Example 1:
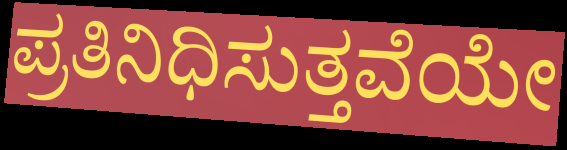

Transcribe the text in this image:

ಪ್ರತಿನಿಧಿಸುತ್ತವೆಯೇ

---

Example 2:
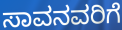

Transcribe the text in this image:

ಸಾವನವರಿಗೆ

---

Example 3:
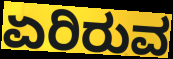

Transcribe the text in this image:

ಏರಿರುವ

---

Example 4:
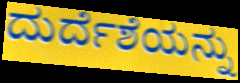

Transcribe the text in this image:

ದುರ್ದೆಶೆಯನ್ನು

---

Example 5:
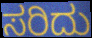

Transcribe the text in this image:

ಸರಿದು